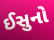
ઈસુનો